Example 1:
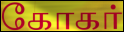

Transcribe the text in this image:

கோகர்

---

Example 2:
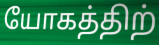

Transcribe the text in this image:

யோகத்திற்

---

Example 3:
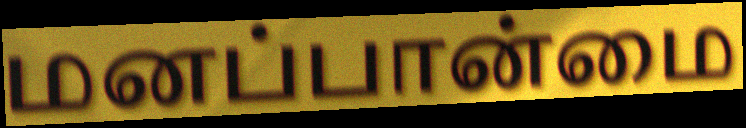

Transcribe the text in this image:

மனப்பான்மை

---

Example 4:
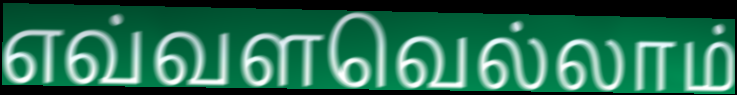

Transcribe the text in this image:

எவ்வளவெல்லாம்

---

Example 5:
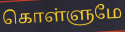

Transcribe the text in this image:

கொள்ளுமே